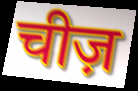
चीज़